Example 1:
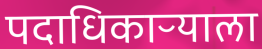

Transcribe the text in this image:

पदाधिकाऱ्याला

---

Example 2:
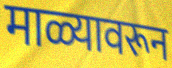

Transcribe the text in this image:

माळ्यावरून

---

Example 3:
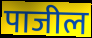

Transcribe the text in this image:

पाजील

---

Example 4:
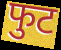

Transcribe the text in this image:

फुट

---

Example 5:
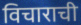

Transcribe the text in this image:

विचाराची